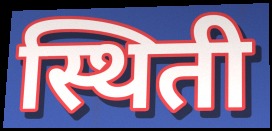
स्थिती